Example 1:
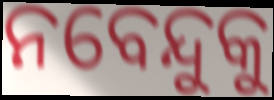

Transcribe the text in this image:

ନବେନ୍ଦୁକୁ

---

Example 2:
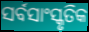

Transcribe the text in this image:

ସର୍ବସାଂସ୍କୃତିକ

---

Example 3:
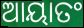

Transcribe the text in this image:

ଆୟାତଂ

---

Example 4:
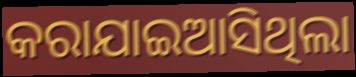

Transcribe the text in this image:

କରାଯାଇଆସିଥିଲା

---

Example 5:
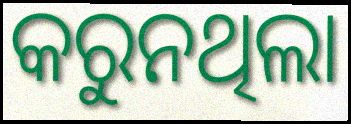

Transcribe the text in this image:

କରୁନଥିଲା